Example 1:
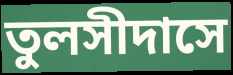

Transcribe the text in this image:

তুলসীদাসে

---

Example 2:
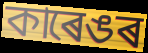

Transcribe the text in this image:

কাৰেঙৰ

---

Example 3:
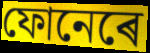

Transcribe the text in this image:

ফোনেৰে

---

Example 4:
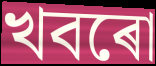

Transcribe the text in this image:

খবৰো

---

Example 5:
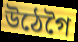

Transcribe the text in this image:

উঠেগৈ